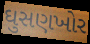
ઘુસણખોર